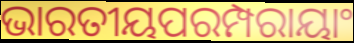
ଭାରତୀୟପରମ୍ପରାୟାଂ